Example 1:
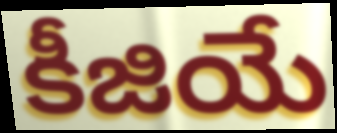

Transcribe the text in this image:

కీజియే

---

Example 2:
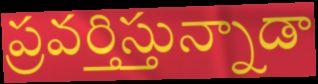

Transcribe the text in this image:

ప్రవర్తిస్తున్నాడా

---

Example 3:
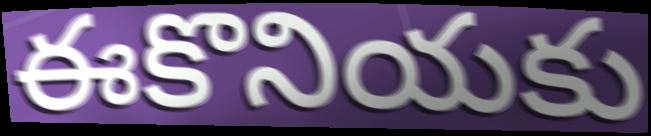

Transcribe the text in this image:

ఈకొనియకు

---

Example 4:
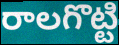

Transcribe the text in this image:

రాలగొట్టి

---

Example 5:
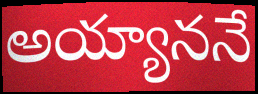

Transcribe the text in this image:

అయ్యాననే